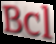
Bcl